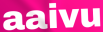
aaivu